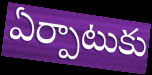
ఏర్పాటుకు